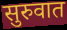
सुरुवात